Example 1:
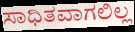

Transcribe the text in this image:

ಸಾಧಿತವಾಗಲಿಲ್ಲ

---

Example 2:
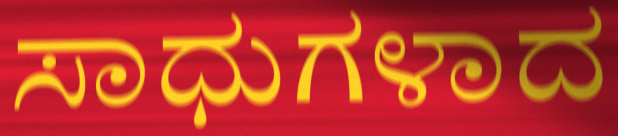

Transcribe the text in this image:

ಸಾಧುಗಳಾದ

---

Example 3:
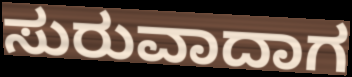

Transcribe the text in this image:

ಸುರುವಾದಾಗ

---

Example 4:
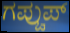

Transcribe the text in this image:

ಗಪ್ಚುಪ್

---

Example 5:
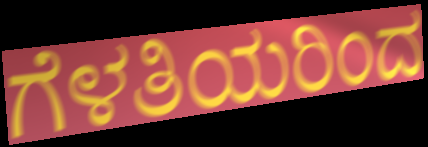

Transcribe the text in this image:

ಗೆಳತಿಯರಿಂದ